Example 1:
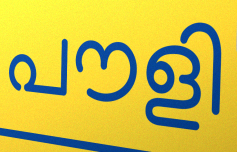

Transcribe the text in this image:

പൗളി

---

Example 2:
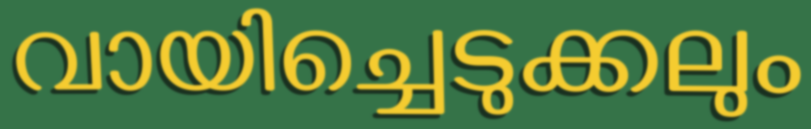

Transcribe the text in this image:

വായിച്ചെടുക്കലും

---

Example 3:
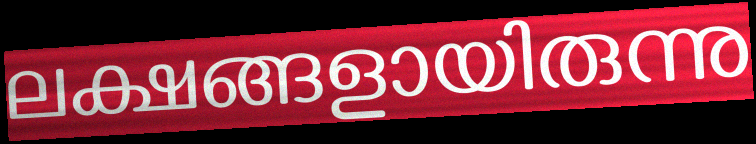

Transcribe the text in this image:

ലക്ഷങ്ങളായിരുന്നു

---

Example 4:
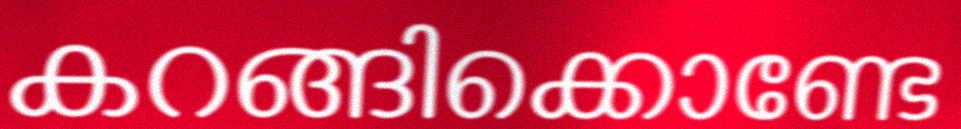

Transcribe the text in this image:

കറങ്ങിക്കൊണ്ടേ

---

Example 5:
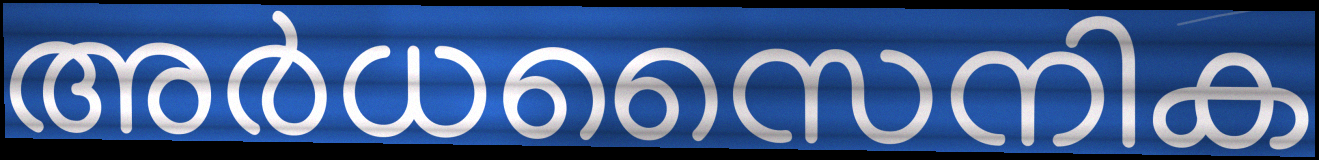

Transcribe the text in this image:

അർധസൈനിക